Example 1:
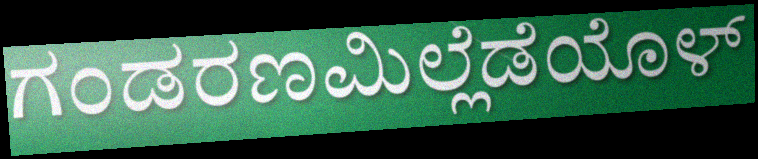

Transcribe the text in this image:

ಗಂಡರಣಮಿಲ್ಲೆಡೆಯೊಳ್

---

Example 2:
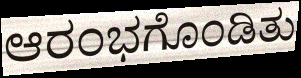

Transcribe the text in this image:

ಆರಂಭಗೊಂಡಿತು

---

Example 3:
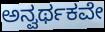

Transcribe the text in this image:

ಅನ್ವರ್ಥಕವೇ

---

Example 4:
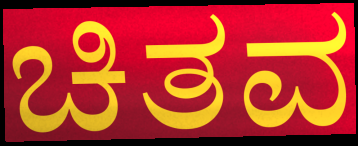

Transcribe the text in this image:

ಚಿತವ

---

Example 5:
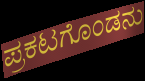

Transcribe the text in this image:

ಪ್ರಕಟಗೊಂಡನು